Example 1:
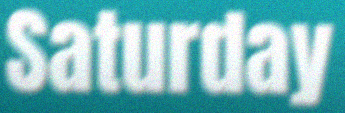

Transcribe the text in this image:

Saturday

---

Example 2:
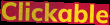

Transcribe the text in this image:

Clickable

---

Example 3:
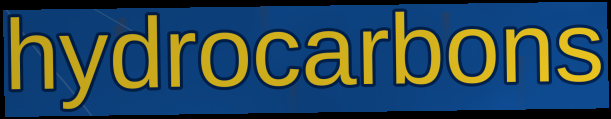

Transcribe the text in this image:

hydrocarbons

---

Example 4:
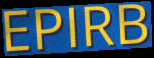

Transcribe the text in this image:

EPIRB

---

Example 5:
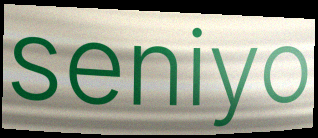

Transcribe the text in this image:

seniyo